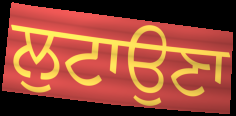
ਲੁਟਾਉਣਾ